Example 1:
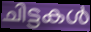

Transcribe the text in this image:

ചിട്ടകൾ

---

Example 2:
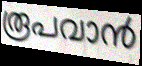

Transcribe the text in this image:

രൂപവാൻ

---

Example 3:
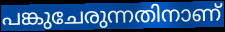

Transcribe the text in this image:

പങ്കുചേരുന്നതിനാണ്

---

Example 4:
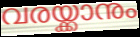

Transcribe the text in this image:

വരയ്ക്കാനും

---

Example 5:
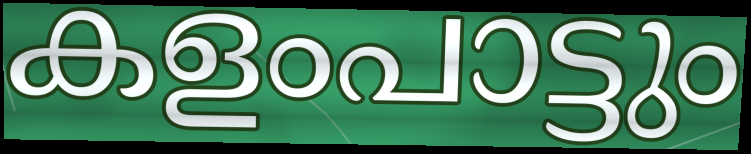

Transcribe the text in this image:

കളംപാട്ടും